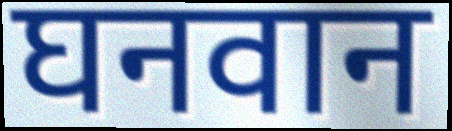
घनवान